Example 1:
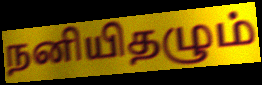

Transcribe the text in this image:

நனியிதழும்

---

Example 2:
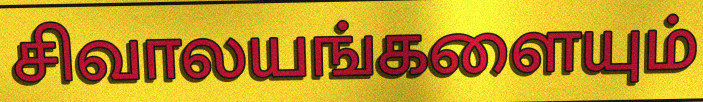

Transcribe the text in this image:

சிவாலயங்களையும்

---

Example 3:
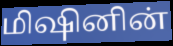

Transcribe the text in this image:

மிஷினின்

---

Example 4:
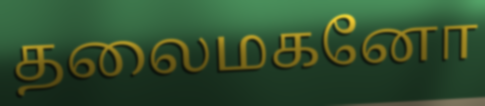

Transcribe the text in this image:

தலைமகனோ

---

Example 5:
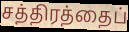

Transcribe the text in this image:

சத்திரத்தைப்